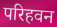
परिहवन